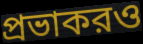
প্রভাকরও